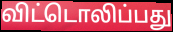
விட்டொலிப்பது